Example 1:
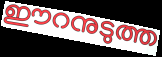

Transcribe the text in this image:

ഈറനുടുത്ത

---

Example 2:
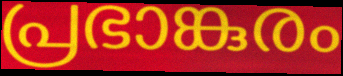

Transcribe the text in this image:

പ്രഭാങ്കുരം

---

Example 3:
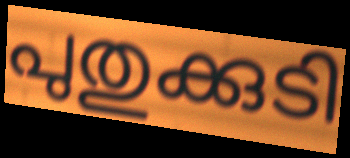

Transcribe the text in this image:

പുതുക്കുടി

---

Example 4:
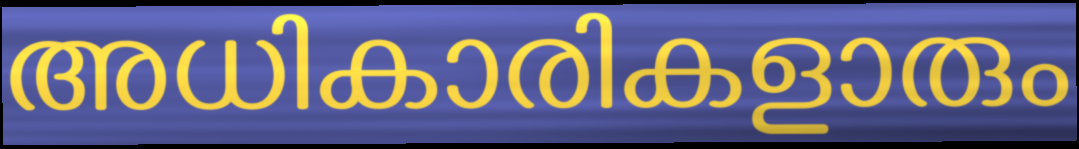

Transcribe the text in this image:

അധികാരികളാരും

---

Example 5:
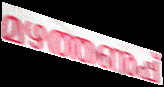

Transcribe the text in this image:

മഴത്തണുപ്പ്